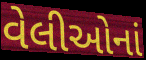
વેલીઓનાં